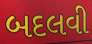
બદલવી